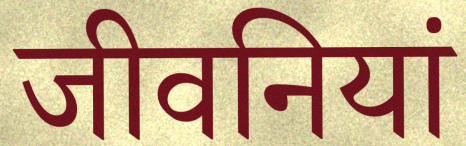
जीवनियां